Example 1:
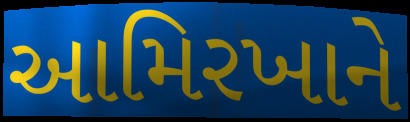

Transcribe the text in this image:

આમિરખાને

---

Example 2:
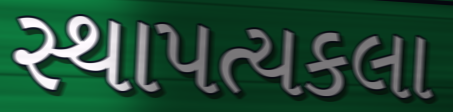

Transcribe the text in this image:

સ્થાપત્યકલા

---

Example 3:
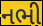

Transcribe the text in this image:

નભી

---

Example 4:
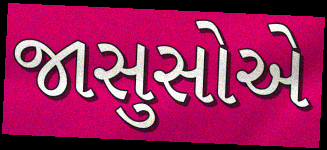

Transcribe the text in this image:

જાસુસોએ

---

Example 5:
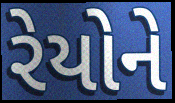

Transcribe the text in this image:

રેયોને